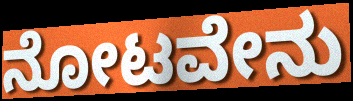
ನೋಟವೇನು